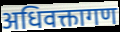
अधिवक्तागण